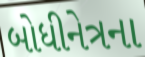
બોધીનેત્રના